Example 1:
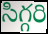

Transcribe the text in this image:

సిగ్గరి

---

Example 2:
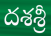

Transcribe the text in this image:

దశశ్రీ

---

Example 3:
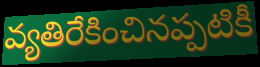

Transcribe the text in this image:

వ్యతిరేకించినప్పటికీ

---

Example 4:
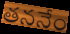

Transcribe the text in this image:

తననేం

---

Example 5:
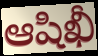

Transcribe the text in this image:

ఆషిఖీ